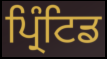
ਪ੍ਰਿੰਟਿਡ